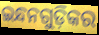
ଇନ୍ଧନଗୁଡ଼ିକର